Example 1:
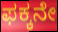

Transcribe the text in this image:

ಫಕ್ಕನೇ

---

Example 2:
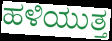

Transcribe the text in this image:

ಹಳಿಯುತ್ತ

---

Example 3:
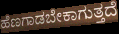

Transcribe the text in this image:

ಹೆಣಗಾಡಬೇಕಾಗುತ್ತದೆ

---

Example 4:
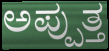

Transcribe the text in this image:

ಅಪ್ಪುತ್ತ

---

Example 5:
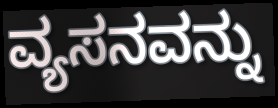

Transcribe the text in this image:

ವ್ಯಸನವನ್ನು